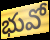
భువో